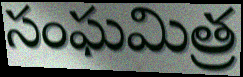
సంఘమిత్ర